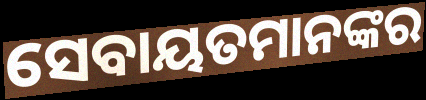
ସେବାୟତମାନଙ୍କର